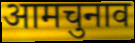
आमचुनाव